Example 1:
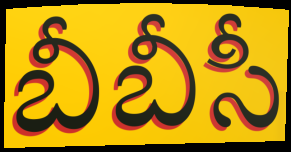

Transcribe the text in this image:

బీబీసీ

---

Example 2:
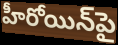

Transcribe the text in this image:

హీరోయిన్‌పై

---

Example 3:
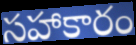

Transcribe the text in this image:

సహాకారం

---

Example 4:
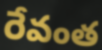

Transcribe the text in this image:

రేవంత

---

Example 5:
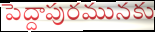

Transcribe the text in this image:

పెద్దాపురమునకు